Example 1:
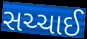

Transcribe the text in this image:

સચ્ચાઈ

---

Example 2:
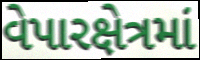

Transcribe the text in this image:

વેપારક્ષેત્રમાં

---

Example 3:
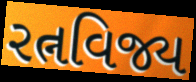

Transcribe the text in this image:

રત્નવિજ્ય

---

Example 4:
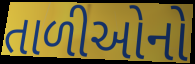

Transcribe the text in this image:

તાળીઓનો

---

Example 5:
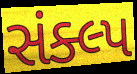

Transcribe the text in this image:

સંક્લ્પ